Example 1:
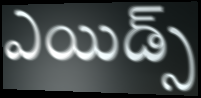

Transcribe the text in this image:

ఎయిడ్స్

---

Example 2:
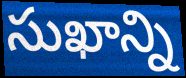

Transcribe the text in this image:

సుఖాన్ని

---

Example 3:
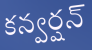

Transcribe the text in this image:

కన్వర్షన్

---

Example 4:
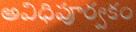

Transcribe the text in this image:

అవిధిపూర్వకం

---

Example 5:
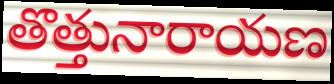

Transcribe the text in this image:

తొత్తునారాయణ